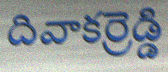
దివాకర్రెడ్డి